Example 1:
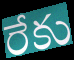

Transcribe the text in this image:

రేకు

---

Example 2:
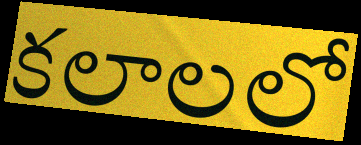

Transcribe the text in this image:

కలాలలో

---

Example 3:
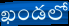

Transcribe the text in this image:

ఖండలో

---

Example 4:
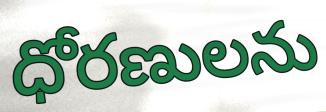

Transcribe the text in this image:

ధోరణులను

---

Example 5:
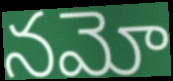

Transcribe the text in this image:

నమో